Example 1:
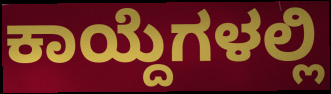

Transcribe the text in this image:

ಕಾಯ್ದೆಗಳಲ್ಲಿ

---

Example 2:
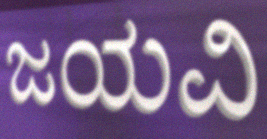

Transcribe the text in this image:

ಜಯವಿ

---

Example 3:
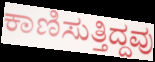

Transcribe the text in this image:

ಕಾಣಿಸುತ್ತಿದ್ದವು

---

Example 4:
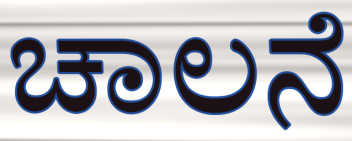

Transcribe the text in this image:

ಚಾಲನೆ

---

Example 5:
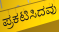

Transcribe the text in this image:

ಪ್ರಕಟಿಸಿದವು